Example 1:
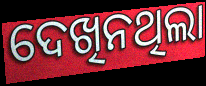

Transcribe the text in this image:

ଦେଖିନଥିଲା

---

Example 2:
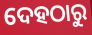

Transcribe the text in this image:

ଦେହଠାରୁ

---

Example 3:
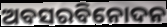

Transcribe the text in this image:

ଅବସରବିନୋଦନ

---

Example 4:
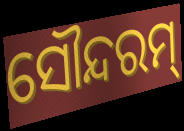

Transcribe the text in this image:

ସୌନ୍ଦରମ୍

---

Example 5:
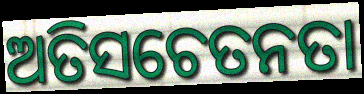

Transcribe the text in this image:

ଅତିସଚେତନତା